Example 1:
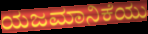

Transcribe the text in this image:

ಯಜಮಾನಿಕೆಯು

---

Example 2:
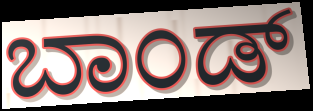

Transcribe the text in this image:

ಬಾಂಡ್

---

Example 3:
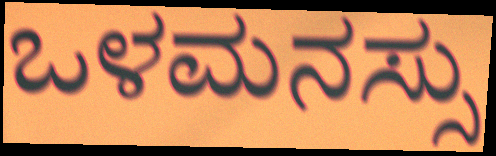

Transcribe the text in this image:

ಒಳಮನಸ್ಸು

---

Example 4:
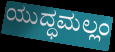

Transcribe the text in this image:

ಯುದ್ಧಮಲ್ಲಂ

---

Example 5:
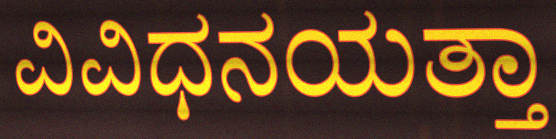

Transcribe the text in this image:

ವಿವಿಧನಯತ್ತಾ